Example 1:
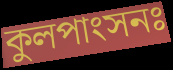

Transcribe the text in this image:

কুলপাংসনঃ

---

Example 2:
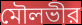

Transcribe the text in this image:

মৌলভীর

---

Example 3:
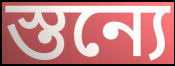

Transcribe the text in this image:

স্তন্যে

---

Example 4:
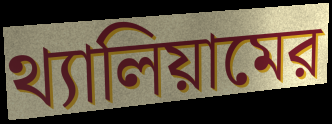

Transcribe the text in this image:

থ্যালিয়ামের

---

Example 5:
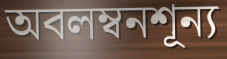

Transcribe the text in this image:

অবলম্বনশূন্য